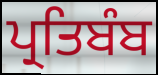
ਪ੍ਰਤਿਬੰਬ